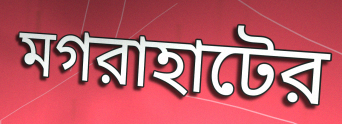
মগরাহাটের